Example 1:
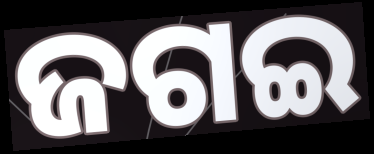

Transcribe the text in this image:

ଜଗଇ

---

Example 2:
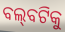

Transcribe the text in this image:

ବଲ୍‌ବଟିକୁ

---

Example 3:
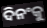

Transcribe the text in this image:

ଦିନଂକୁ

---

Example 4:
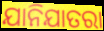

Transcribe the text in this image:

ଯାନିଯାତରା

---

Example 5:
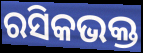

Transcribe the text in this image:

ରସିକଭକ୍ତ